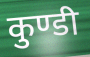
कुण्डी